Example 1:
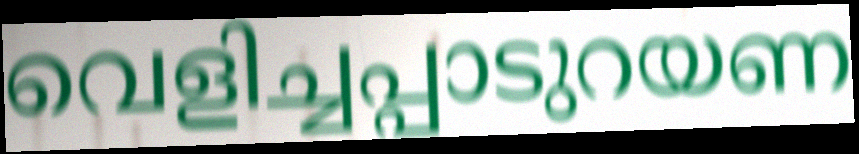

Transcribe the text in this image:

വെളിച്ചപ്പാടുറയണ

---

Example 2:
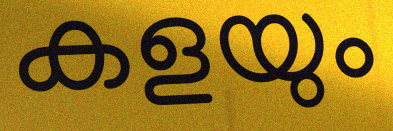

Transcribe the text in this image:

കളയും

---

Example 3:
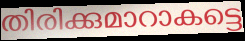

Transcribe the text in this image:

തിരിക്കുമാറാകട്ടെ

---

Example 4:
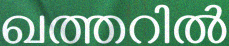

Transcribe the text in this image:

ഖത്തറിൽ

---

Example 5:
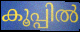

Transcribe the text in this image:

കൂപ്പിൽ